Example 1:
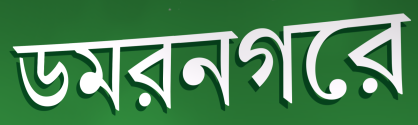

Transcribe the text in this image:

ডমরনগরে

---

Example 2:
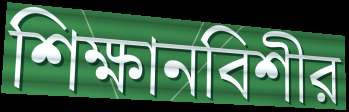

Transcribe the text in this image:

শিক্ষানবিশীর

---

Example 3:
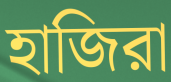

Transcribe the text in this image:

হাজিরা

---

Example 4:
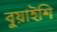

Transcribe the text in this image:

বুয়াইশি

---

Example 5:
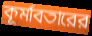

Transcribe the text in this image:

কূর্মাবতারের